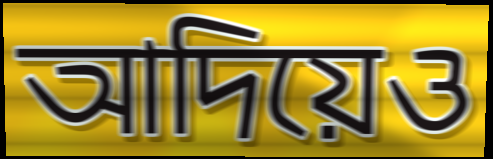
আদিয়েও